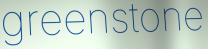
greenstone